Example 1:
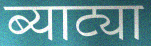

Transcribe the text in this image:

ब्याट्या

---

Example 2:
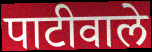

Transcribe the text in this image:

पाटीवाले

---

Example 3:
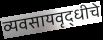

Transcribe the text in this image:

व्यवसायवृद्धीचे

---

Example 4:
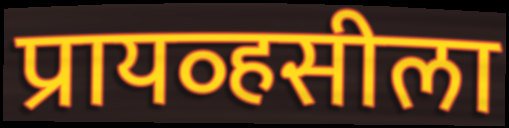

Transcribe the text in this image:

प्रायव्हसीला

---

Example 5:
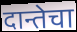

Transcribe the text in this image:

दान्तेचा